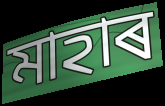
মাহাৰ